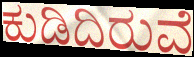
ಕುಡಿದಿರುವೆ